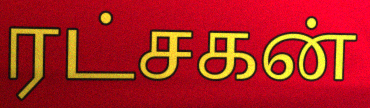
ரட்சகன்